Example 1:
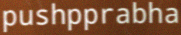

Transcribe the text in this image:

pushpprabha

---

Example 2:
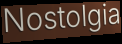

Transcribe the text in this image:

Nostolgia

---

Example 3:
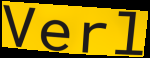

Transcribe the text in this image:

Verl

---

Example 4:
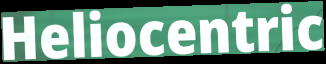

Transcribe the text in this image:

Heliocentric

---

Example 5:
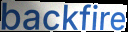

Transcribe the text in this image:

backfire